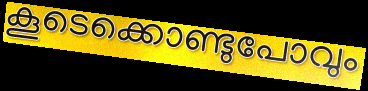
കൂടെക്കൊണ്ടുപോവും